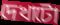
দেখাটো